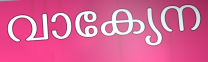
വാക്യേന